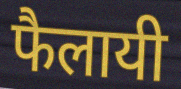
फैलायी